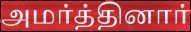
அமர்த்தினார்